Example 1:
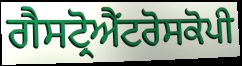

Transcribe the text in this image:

ਗੈਸਟ੍ਰੋਐਂਟਰੋਸਕੋਪੀ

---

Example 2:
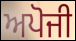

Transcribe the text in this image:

ਅਪੋਜੀ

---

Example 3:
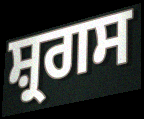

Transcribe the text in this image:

ਸ਼੍ਰਗਸ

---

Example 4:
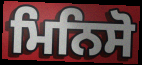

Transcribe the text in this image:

ਮਿਨਿਸੋ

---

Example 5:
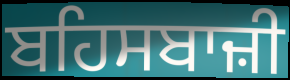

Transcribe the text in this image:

ਬਹਿਸਬਾਜ਼ੀ